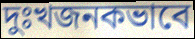
দুঃখজনকভাবে